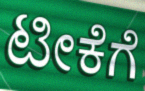
ಟೀಕೆಗೆ